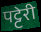
पट्टेरी